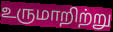
உருமாறிற்று